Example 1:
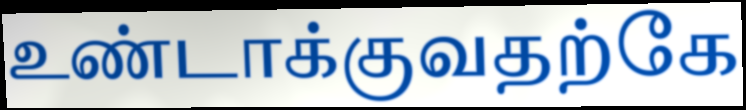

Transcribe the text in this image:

உண்டாக்குவதற்கே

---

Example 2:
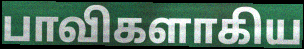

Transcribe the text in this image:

பாவிகளாகிய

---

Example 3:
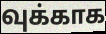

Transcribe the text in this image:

வுக்காக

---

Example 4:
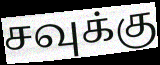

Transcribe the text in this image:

சவுக்கு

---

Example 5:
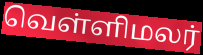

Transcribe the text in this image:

வெள்ளிமலர்